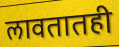
लावतातही